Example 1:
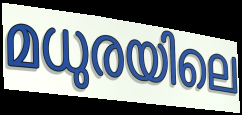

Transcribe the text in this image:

മധുരയിലെ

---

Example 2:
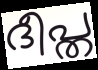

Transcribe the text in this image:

ദീപ്ത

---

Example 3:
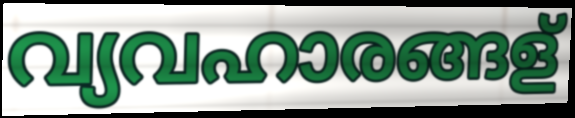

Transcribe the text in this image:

വ്യവഹാരങ്ങള്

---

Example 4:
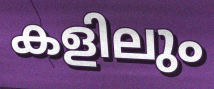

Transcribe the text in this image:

കളിലും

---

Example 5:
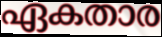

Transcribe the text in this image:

ഏകതാര